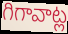
గిగావాట్ల